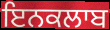
ਇਨਕਲਾਬ